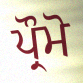
ਪ੍ਰੌਮੋ